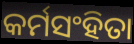
କର୍ମସଂହିତା